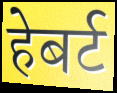
हेबर्ट